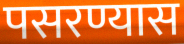
पसरण्यास